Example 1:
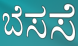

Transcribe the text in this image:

ಬೆಸಸೆ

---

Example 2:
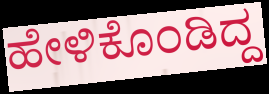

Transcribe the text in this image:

ಹೇಳಿಕೊಂಡಿದ್ದ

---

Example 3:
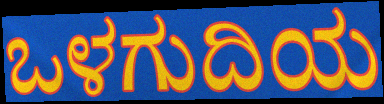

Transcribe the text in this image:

ಒಳಗುದಿಯ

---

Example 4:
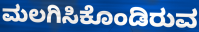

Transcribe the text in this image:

ಮಲಗಿಸಿಕೊಂಡಿರುವ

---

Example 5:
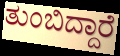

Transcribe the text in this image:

ತುಂಬಿದ್ದಾರೆ